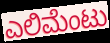
ಎಲಿಮೆಂಟು